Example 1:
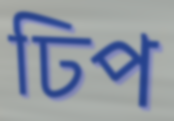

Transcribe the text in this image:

ঢিপ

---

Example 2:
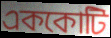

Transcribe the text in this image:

এককোটি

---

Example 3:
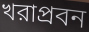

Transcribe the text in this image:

খরাপ্রবন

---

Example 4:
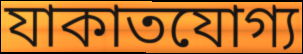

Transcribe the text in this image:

যাকাতযোগ্য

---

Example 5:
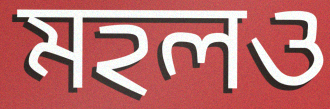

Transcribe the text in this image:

মহলও